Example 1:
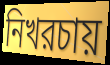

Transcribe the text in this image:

নিখরচায়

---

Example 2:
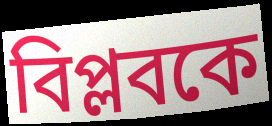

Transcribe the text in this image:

বিপ্লবকে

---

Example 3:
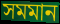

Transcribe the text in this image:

সমমান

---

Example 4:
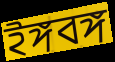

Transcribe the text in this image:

ইঙ্গবঙ্গ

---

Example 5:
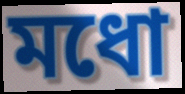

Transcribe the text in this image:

মধো